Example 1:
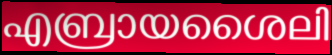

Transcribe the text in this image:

എബ്രായശൈലി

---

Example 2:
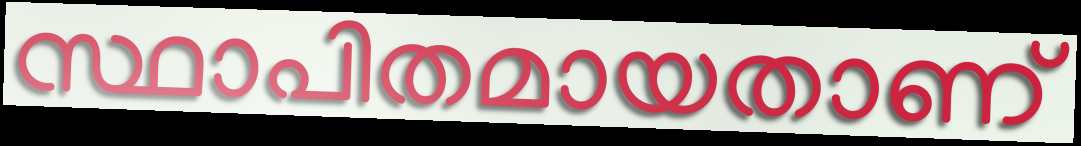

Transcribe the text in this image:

സ്ഥാപിതമായതാണ്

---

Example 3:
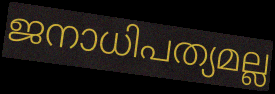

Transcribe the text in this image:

ജനാധിപത്യമല്ല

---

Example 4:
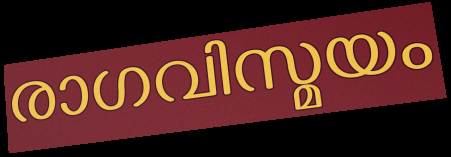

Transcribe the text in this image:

രാഗവിസ്മയം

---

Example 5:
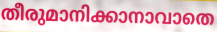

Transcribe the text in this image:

തീരുമാനിക്കാനാവാതെ